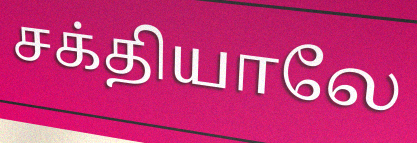
சக்தியாலே